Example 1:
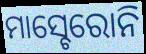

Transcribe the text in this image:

ମାସ୍ଚେରୋନି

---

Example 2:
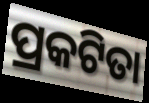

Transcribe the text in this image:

ପ୍ରକଟିତା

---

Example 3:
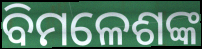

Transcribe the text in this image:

ବିମଳେଶଙ୍କ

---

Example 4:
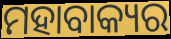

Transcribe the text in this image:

ମହାବାକ୍ୟର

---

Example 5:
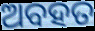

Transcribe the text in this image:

ଅବହତ